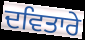
ਦਵਿਤਾਰੇ